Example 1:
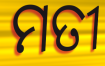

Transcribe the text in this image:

ମତୀ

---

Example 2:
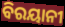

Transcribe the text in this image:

ବିରୟାନୀ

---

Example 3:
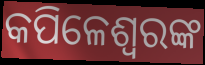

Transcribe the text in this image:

କପିଳେଶ୍ବରଙ୍କ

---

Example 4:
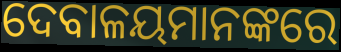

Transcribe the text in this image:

ଦେବାଳୟମାନଙ୍କରେ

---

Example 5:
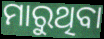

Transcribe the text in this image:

ମାରୁଥିବା